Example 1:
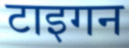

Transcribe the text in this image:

टाइगन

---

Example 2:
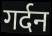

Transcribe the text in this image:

गर्दन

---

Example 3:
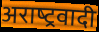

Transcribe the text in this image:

अराष्ट्रवादी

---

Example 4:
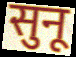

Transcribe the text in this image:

सुनू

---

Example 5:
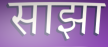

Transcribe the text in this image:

साझा